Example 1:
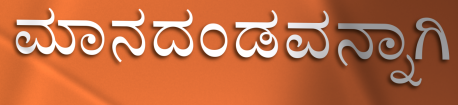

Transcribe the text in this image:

ಮಾನದಂಡವನ್ನಾಗಿ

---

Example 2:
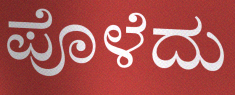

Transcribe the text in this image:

ಪೊಳೆದು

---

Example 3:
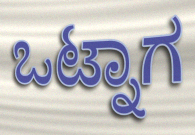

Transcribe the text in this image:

ಒಟ್ನಾಗ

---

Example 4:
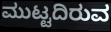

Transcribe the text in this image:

ಮುಟ್ಟದಿರುವ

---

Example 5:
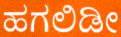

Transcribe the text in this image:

ಹಗಲಿಡೀ